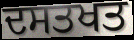
ਦਸਤਖਤ